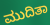
ಮುದಿತಾ